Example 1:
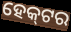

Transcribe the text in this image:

ହେକ୍‌ଟର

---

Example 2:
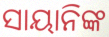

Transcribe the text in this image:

ସାୟାନିଙ୍କ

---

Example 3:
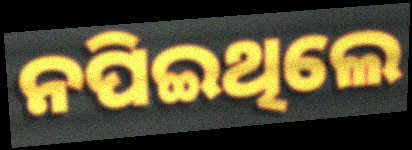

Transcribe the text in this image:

ନପିଇଥିଲେ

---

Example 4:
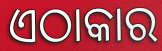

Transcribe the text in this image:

ଏଠାକାର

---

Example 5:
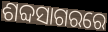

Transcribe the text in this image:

ଶବ୍ଦସାଗରରେ